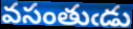
వసంతుఁడు